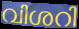
വിശറി